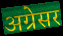
अग्रेसर